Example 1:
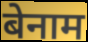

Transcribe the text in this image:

बेनाम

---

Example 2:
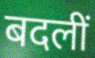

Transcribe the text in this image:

बदलीं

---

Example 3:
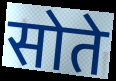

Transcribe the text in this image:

सोते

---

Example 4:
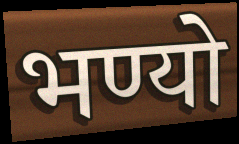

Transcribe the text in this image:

भण्यो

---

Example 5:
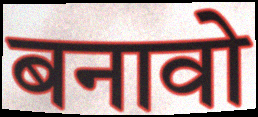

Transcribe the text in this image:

बनावो